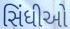
સિંધીઓ